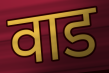
वाड